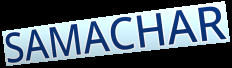
SAMACHAR